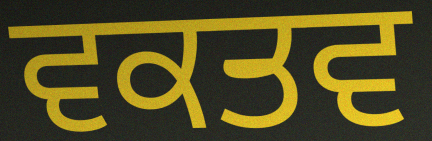
ਵਕਤਵ